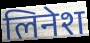
लिनेश